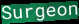
Surgeon